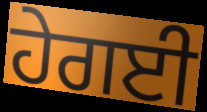
ਹੇਗਈ